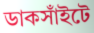
ডাকসাঁইটে